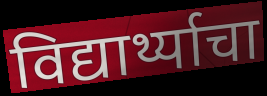
विद्यार्थ्याचा